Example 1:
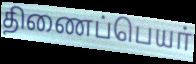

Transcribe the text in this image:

திணைப்பெயர்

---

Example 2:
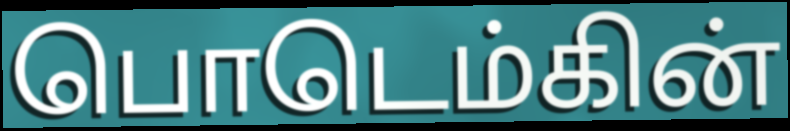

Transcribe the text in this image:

பொடெம்கின்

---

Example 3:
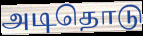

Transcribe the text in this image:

அடிதொடு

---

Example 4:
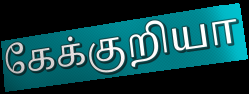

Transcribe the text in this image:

கேக்குறியா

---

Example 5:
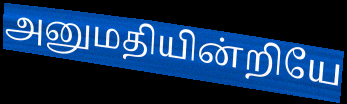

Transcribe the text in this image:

அனுமதியின்றியே